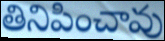
తినిపించావు